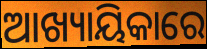
ଆଖ୍ୟାୟିକାରେ